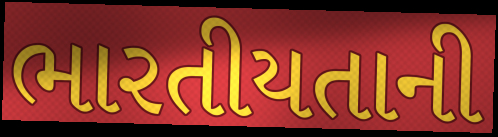
ભારતીયતાની